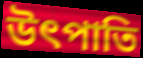
উৎপাতি